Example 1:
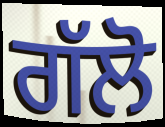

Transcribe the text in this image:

ਗੱਲੋ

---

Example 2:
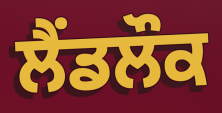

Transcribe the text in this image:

ਲੈਂਡਲੌਕ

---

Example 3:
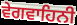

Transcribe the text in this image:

ਵੇਗਵਾਹਿਨੀ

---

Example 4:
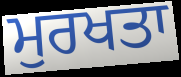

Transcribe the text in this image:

ਮੁਰਖਤਾ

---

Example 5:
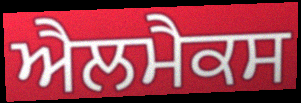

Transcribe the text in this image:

ਐਲਮੈਕਸ